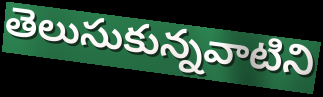
తెలుసుకున్నవాటిని